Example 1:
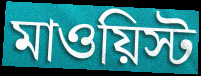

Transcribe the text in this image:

মাওয়িস্ট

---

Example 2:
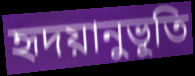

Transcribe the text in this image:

হৃদয়ানুভূতি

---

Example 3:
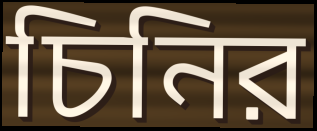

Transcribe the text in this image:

চিনির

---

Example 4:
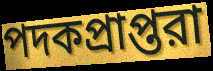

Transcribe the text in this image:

পদকপ্রাপ্তরা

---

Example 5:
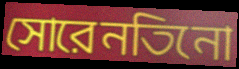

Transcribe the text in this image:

সোরেনতিনো